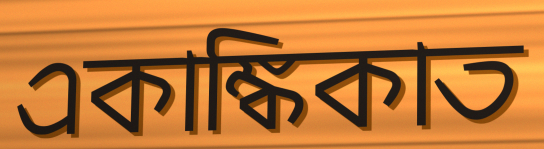
একাঙ্কিকাত